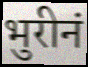
भुरीनं